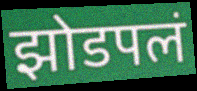
झोडपलं